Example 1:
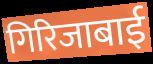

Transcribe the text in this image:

गिरिजाबाई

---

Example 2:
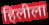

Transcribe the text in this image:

हिलीला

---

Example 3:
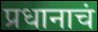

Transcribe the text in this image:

प्रधानाचं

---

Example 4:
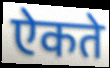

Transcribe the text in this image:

ऐकते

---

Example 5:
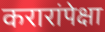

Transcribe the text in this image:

करारांपेक्षा